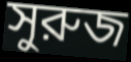
সুরুজ